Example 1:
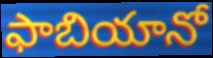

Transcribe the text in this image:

ఫాబియానో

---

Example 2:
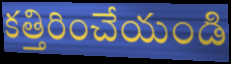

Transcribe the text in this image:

కత్తిరించేయండి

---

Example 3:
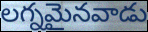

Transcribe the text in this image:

లగ్నమైనవాడు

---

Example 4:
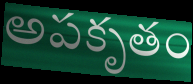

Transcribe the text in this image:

అపకృతం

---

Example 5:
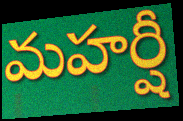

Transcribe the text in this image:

మహర్షీ